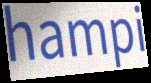
hampi